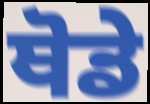
ਥੋਡੇ